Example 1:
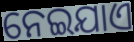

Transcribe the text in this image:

ନେଇଯାଏ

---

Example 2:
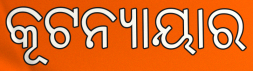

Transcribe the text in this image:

କୂଟନ୍ୟାୟାର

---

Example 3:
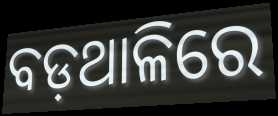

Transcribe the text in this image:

ବଡ଼ଥାଳିରେ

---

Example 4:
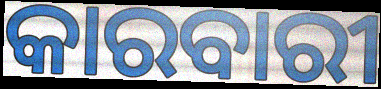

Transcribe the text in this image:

କାରବାରୀ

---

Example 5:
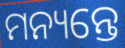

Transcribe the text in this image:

ମନ୍ୟନ୍ତେ